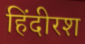
हिंदीरश